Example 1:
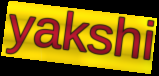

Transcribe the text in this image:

yakshi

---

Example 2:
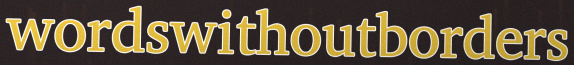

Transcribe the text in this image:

wordswithoutborders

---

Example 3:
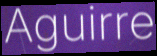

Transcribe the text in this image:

Aguirre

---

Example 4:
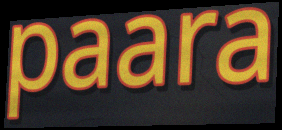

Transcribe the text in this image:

paara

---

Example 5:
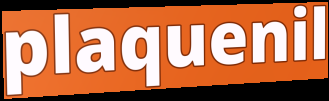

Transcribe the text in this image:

plaquenil